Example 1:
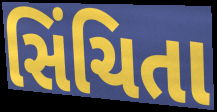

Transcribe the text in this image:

સિંચિતા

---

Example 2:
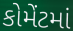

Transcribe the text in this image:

કોમેંટમાં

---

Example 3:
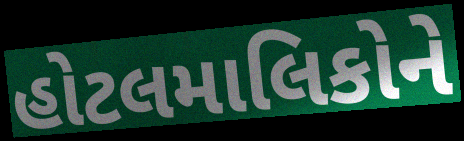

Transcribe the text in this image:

હોટલમાલિકોને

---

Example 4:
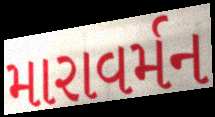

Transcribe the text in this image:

મારાવર્મન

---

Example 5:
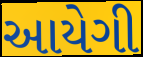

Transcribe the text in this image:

આયેગી